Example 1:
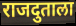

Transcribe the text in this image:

राजदुताला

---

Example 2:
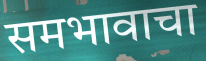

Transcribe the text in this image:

समभावाचा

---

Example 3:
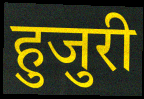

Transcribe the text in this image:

हुजुरी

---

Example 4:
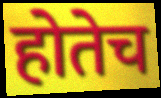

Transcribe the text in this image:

होतेच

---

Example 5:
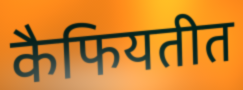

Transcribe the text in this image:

कैफियतीत